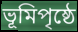
ভূমিপৃষ্ঠে